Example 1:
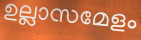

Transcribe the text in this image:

ഉല്ലാസമേളം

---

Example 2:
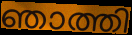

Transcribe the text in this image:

ഞാത്തി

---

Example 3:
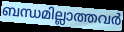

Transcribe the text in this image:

ബന്ധമില്ലാത്തവർ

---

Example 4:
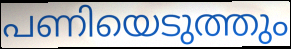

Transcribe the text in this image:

പണിയെടുത്തും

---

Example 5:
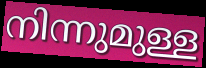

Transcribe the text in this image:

നിന്നുമുള്ള